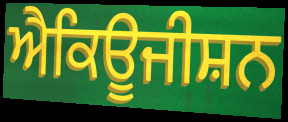
ਐਕਿਊਜੀਸ਼ਨ